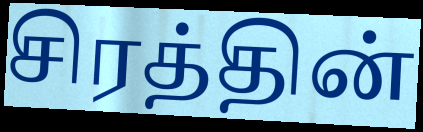
சிரத்தின்